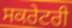
ਸਕਰੇਟਰੀ